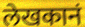
लेखकानं